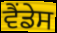
ਵੈਂਡੇਸ